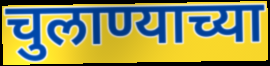
चुलाण्याच्या